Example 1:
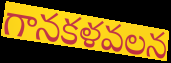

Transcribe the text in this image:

గానకళవలన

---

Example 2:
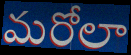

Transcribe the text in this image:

మరోలా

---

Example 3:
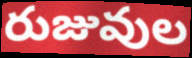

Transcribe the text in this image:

రుజువుల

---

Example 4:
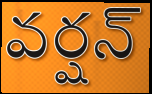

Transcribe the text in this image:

వర్షన్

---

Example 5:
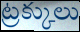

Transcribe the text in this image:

ట్రక్కులు